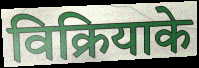
विक्रियाके